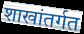
शाखांतर्गत